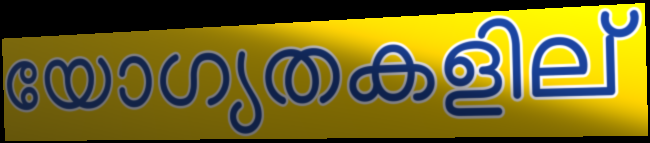
യോഗ്യതകളില്